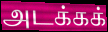
அடக்கக்